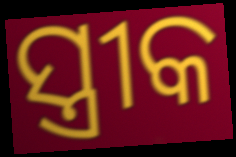
ସ୍ତ୍ରୀକ